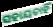
ସହାୟତାହିଁ